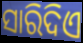
ସାରିଦିଏ